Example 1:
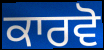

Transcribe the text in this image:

ਕਾਰਵੋ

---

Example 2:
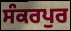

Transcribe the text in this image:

ਸੰਕਰਪੁਰ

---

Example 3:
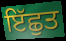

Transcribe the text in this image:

ਇੱਛੁਤ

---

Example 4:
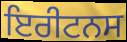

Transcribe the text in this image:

ਇਰੀਟਨਸ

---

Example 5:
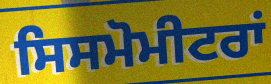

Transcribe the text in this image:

ਸਿਸਮੋਮੀਟਰਾਂ